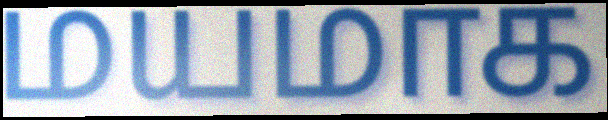
மயமாக